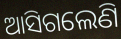
ଆସିଗଲେଣି